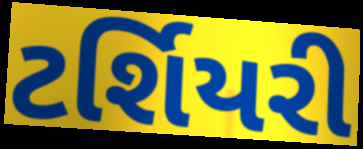
ટર્શિયરી